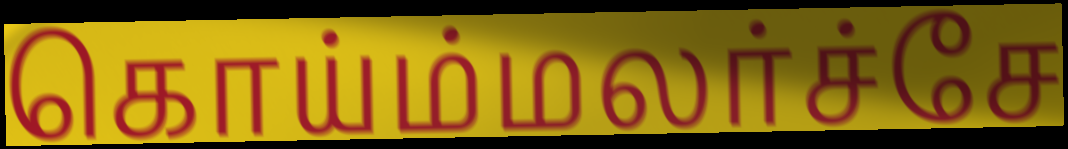
கொய்ம்மலர்ச்சே